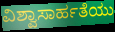
ವಿಶ್ವಾಸಾರ್ಹತೆಯು